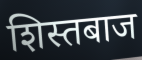
शिस्तबाज